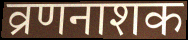
व्रणनाशक